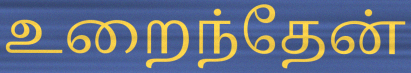
உறைந்தேன்